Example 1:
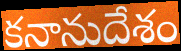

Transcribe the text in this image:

కనానుదేశం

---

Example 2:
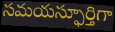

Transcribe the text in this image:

సమయస్ఫూర్తిగా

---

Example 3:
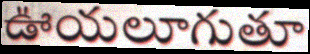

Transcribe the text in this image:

ఊయలూగుతూ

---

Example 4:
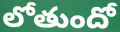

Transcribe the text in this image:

లోతుందో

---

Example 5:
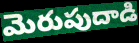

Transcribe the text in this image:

మెరుపుదాడి